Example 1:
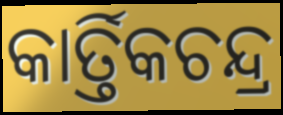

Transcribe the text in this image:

କାର୍ତ୍ତିକଚନ୍ଦ୍ର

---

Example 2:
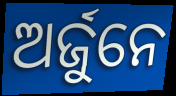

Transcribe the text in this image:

ଅର୍ଜୁନେ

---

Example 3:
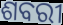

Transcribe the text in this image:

ଶବରୀ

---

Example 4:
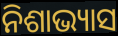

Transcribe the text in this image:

ନିଶାଭ୍ୟାସ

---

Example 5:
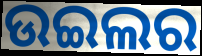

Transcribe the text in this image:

ଉଇଲର